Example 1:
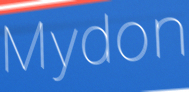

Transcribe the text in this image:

Mydon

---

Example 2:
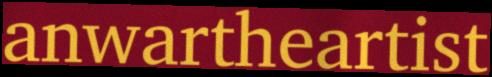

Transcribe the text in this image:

anwartheartist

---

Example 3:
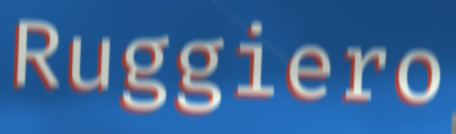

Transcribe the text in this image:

Ruggiero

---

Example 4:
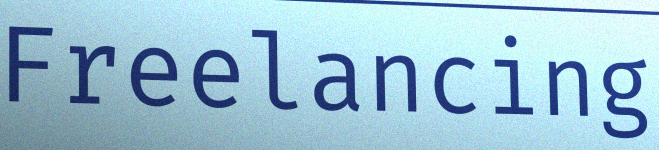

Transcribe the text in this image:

Freelancing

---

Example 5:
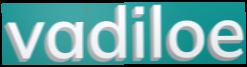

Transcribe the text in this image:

vadiloe